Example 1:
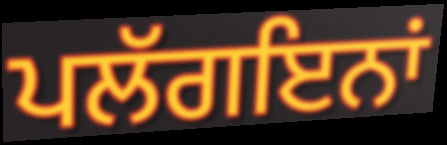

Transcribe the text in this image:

ਪਲੱਗਇਨਾਂ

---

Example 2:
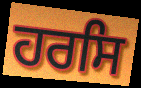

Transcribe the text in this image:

ਹਰਸਿ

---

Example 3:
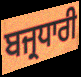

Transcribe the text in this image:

ਬਜ੍ਰਧਾਰੀ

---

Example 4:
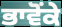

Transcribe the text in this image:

ਭਾਵੋਂਕੇ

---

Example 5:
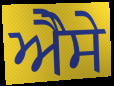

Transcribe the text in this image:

ਐੇਸੇ